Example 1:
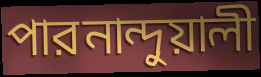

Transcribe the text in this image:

পারনান্দুয়ালী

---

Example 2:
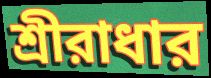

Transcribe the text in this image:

শ্রীরাধার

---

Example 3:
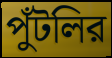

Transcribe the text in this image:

পুঁটলির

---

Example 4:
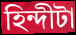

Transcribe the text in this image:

হিন্দীটা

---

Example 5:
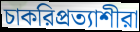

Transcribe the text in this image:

চাকরিপ্রত্যাশীরা